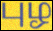
புழ